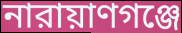
নারায়াণগঞ্জে